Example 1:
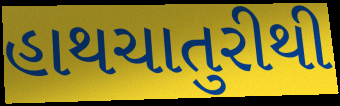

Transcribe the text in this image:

હાથચાતુરીથી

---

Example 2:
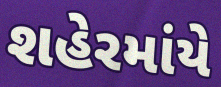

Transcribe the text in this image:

શહેરમાંયે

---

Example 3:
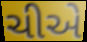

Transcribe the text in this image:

ચીએ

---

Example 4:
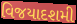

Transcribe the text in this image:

વિજયાદશમી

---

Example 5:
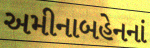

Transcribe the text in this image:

અમીનાબહેનનાં